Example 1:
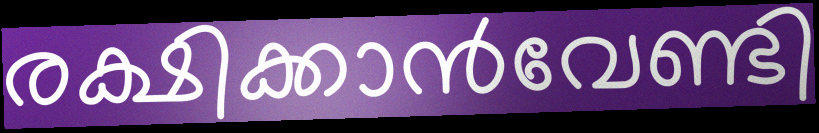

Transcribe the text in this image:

രക്ഷിക്കാൻവേണ്ടി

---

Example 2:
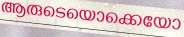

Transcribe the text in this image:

ആരുടെയൊക്കെയോ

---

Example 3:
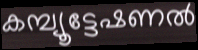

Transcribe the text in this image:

കമ്പ്യൂട്ടേഷണൽ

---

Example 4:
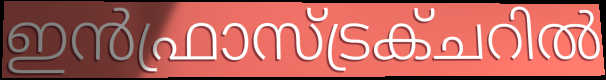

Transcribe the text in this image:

ഇൻഫ്രാസ്ട്രക്ചറിൽ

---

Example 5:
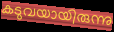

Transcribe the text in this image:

കടുവയായിരുന്നു